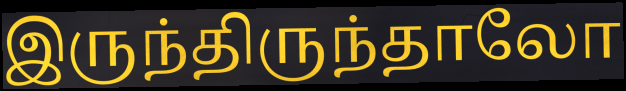
இருந்திருந்தாலோ